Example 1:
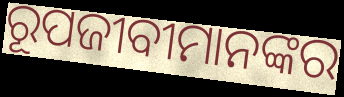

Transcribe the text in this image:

ରୂପଜୀବୀମାନଙ୍କର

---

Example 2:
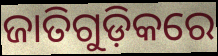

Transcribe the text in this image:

ଜାତିଗୁଡ଼ିକରେ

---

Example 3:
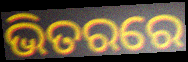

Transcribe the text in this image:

ଭିତରରେ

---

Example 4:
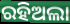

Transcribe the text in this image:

ରହିଅଲା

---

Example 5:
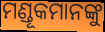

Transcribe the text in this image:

ମଣ୍ଡୂକମାନଙ୍କୁ